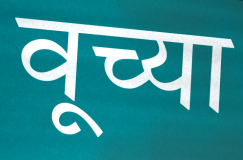
वूच्या